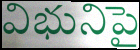
విభునిపై